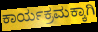
ಕಾರ್ಯಕ್ರಮಕ್ಕಾಗಿ